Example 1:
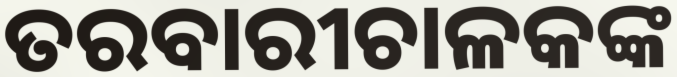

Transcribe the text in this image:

ତରବାରୀଚାଳକଙ୍କ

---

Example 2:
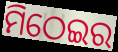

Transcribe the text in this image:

ମିଠେଇର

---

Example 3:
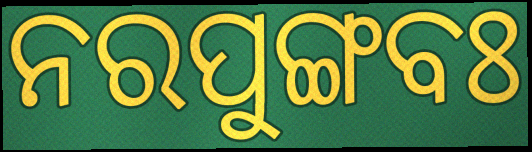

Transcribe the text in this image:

ନରପୁଙ୍ଗବଃ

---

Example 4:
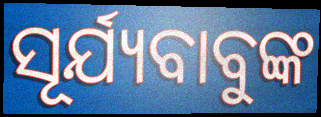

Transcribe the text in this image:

ସୂର୍ଯ୍ୟବାବୁଙ୍କ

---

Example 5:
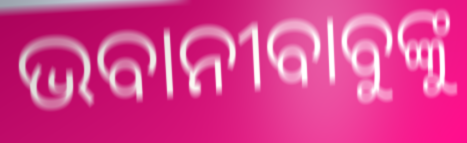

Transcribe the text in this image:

ଭବାନୀବାବୁଙ୍କୁ